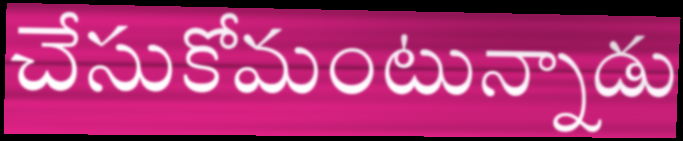
చేసుకోమంటున్నాడు